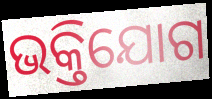
ଭକ୍ତିଯୋଗ